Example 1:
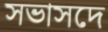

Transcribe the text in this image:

সভাসদে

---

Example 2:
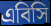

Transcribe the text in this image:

এবিসি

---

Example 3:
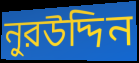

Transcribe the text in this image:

নুরউদ্দিন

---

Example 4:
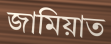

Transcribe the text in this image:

জামিয়াত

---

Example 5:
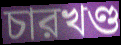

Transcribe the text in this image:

চারখণ্ড